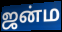
ஜன்ம